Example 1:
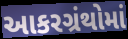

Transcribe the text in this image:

આકરગ્રંથોમાં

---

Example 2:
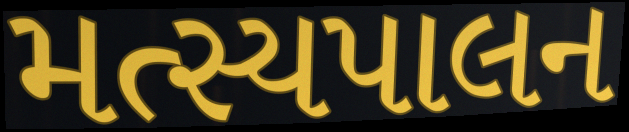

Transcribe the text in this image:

મત્સ્યપાલન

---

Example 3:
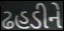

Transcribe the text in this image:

ઢહડીને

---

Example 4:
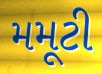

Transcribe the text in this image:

મમૂટી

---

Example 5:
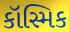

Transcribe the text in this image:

કૉસ્મિક